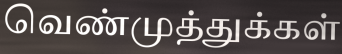
வெண்முத்துக்கள்